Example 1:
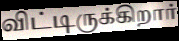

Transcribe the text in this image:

விட்டிருக்கிறார்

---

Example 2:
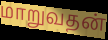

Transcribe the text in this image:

மாறுவதன்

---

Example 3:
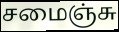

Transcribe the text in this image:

சமைஞ்சு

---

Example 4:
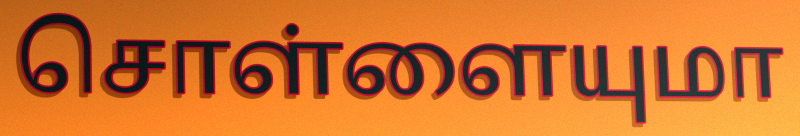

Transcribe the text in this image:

சொள்ளையுமா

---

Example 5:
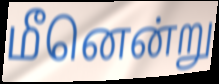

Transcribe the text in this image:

மீனென்று